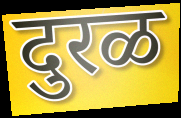
दुरळ